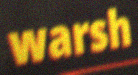
warsh